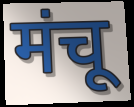
मंचू